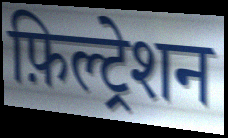
फ़िल्ट्रेशन